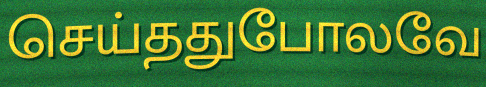
செய்ததுபோலவே